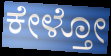
ಕೇಳ್ತೋ